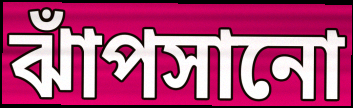
ঝাঁপসানো